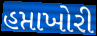
હપ્તાખોરી